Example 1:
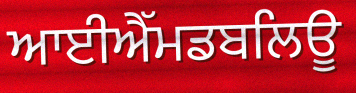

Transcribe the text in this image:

ਆਈਐੱਮਡਬਲਿਊ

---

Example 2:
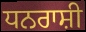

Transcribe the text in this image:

ਧਨਰਾਸ਼ੀ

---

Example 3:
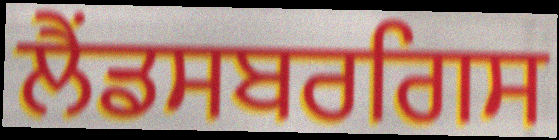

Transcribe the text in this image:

ਲੈਂਡਸਬਰਗਿਸ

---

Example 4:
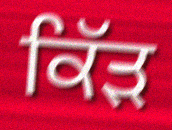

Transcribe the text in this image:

ਕਿੱੜ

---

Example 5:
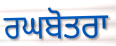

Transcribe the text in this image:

ਰਘਬੋਤਰਾ